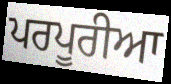
ਪਰਪੂਰੀਆ